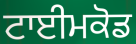
ਟਾਈਮਕੋਡ